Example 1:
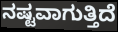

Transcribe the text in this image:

ನಷ್ಟವಾಗುತ್ತಿದೆ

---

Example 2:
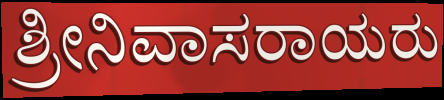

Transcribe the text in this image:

ಶ್ರೀನಿವಾಸರಾಯರು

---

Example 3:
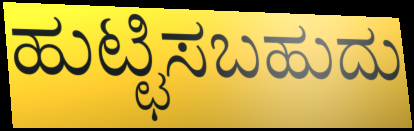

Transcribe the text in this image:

ಹುಟ್ಟಿಸಬಹುದು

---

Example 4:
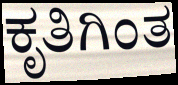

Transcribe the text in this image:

ಕೃತಿಗಿಂತ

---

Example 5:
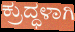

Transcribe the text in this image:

ಕ್ರುದ್ಧಳಾಗಿ